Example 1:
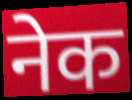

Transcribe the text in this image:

नेक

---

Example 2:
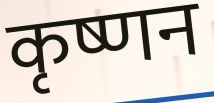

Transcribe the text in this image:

कृष्णन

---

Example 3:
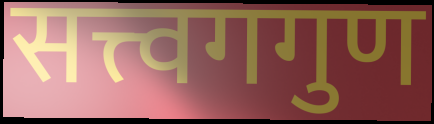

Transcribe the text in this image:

सत्त्वगगुण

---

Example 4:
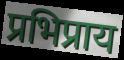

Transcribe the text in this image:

प्रभिप्राय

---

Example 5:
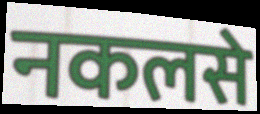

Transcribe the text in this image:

नकलसे